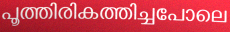
പൂത്തിരികത്തിച്ചപോലെ